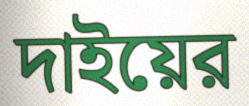
দাইয়ের